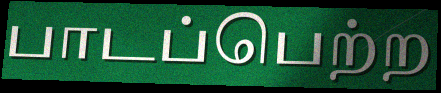
பாடப்பெற்ற